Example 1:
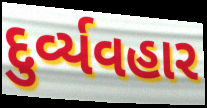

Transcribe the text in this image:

દુર્વ્યવહાર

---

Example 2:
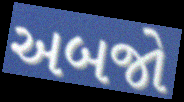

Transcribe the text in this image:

અબજો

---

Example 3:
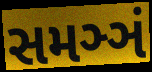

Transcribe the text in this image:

સમઞ્ઞં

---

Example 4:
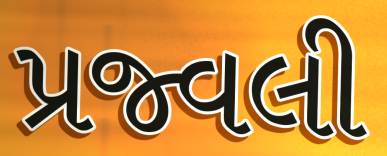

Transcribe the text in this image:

પ્રજ્વલી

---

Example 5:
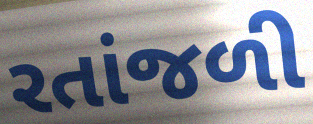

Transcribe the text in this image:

રતાંજળી